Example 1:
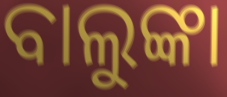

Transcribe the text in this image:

ବାଲୁଙ୍କା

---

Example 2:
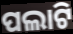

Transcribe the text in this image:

ପଲାଟି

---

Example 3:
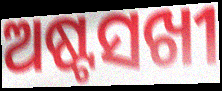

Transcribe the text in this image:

ଅଷ୍ଟସଖୀ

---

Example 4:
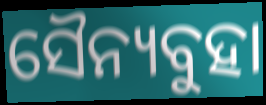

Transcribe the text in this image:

ସୈନ୍ୟବୁହା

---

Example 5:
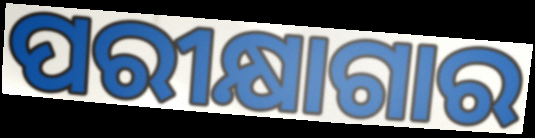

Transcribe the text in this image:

ପରୀକ୍ଷାଗାର